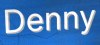
Denny